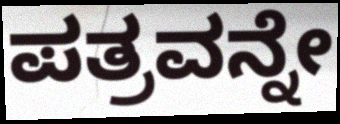
ಪತ್ರವನ್ನೇ